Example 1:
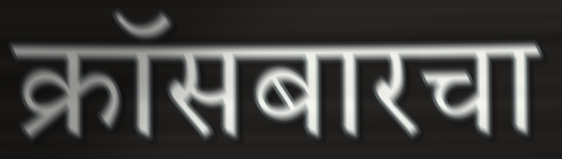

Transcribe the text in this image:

क्रॉसबारचा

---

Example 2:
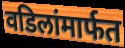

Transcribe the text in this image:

वडिलांमार्फत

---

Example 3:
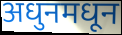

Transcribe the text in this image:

अधुनमधून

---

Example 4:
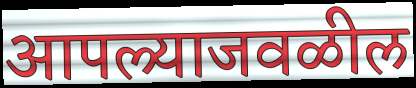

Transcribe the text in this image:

आपल्याजवळील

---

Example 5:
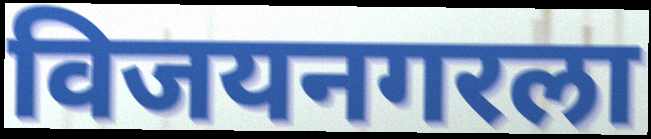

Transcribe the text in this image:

विजयनगरला